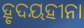
ହୃଦୟହୀନା